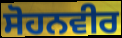
ਸੋਹਨਵੀਰ